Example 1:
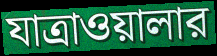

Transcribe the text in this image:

যাত্রাওয়ালার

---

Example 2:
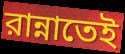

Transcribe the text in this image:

রান্নাতেই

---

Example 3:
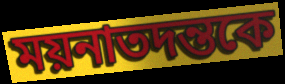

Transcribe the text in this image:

ময়নাতদন্তকে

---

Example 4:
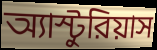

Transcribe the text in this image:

অ্যাস্টুরিয়াস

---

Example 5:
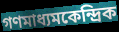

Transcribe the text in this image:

গণমাধ্যমকেন্দ্রিক